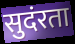
सुदंरता